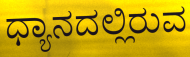
ಧ್ಯಾನದಲ್ಲಿರುವ